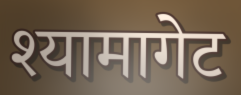
श्यामागेट